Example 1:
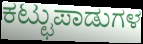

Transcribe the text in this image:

ಕಟ್ಟುಪಾಡುಗಳ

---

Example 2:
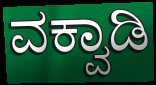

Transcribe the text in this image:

ವಕ್ವಾಡಿ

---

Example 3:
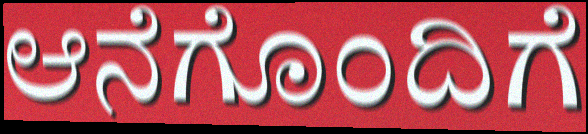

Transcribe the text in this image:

ಆನೆಗೊಂದಿಗೆ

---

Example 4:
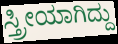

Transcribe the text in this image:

ಸ್ತ್ರೀಯಾಗಿದ್ದು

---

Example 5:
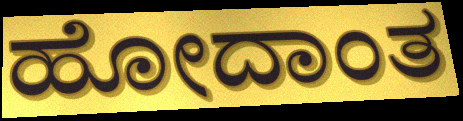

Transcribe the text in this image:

ಹೋದಾಂತ